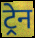
ट्र्रेन